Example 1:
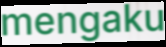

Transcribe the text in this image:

mengaku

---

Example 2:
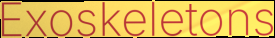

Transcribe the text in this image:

Exoskeletons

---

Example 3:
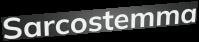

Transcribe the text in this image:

Sarcostemma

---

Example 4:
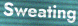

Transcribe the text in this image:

Sweating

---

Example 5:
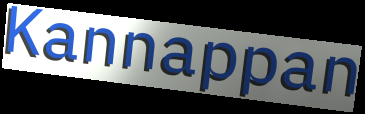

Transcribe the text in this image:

Kannappan